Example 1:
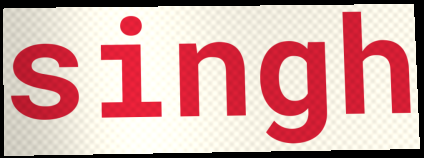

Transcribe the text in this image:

singh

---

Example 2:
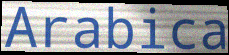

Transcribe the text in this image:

Arabica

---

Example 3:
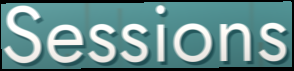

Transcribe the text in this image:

Sessions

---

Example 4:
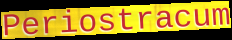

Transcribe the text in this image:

Periostracum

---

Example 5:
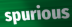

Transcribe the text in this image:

spurious